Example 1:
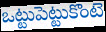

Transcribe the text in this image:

ఒట్టుపెట్టుకొంటె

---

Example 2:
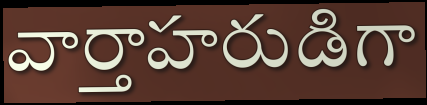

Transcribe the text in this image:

వార్తాహరుడిగా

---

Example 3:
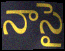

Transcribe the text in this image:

నాసై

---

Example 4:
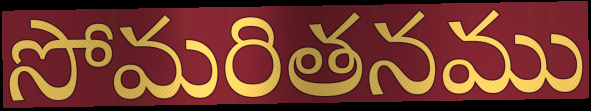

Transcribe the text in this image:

సోమరితనము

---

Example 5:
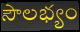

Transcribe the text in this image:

సౌలభ్యం